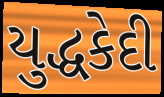
યુદ્ધકેદી